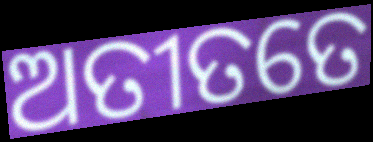
ଅତୀତତେ